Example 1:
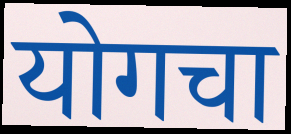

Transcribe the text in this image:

योगचा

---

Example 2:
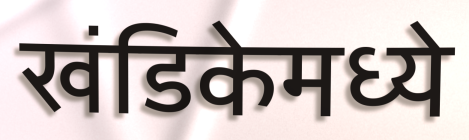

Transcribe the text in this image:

खंडिकेमध्ये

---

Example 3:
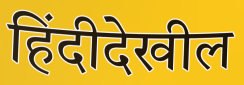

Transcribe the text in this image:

हिंदीदेखील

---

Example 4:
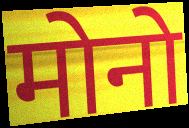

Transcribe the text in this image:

मोनो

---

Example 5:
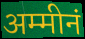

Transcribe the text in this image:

अम्मीनं